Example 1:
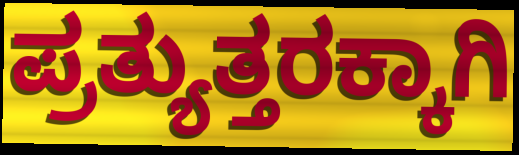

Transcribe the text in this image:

ಪ್ರತ್ಯುತ್ತರಕ್ಕಾಗಿ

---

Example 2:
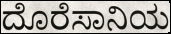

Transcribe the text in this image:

ದೊರೆಸಾನಿಯ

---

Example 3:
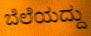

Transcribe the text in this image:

ಬೆಲೆಯದ್ದು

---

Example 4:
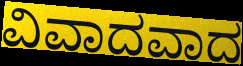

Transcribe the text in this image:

ವಿವಾದವಾದ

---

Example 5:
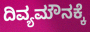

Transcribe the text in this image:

ದಿವ್ಯಮೌನಕ್ಕೆ